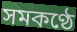
সমকণ্ঠে